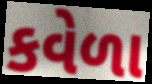
કવેળા